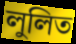
লুলিত